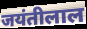
जयंतीलाल